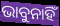
ଭାବୁନାହିଁ